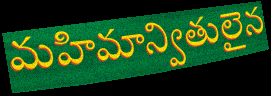
మహిమాన్వితులైన